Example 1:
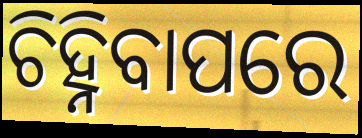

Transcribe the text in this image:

ଚିହ୍ନିବାପରେ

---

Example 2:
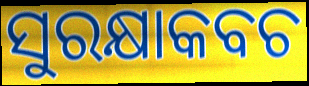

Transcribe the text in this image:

ସୁରକ୍ଷାକବଚ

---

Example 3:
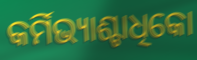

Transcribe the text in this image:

କର୍ମିଭ୍ୟାଶ୍ଚାଧିକୋ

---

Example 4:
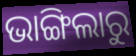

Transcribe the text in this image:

ଭାଙ୍ଗିଲାରୁ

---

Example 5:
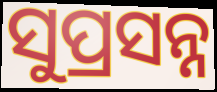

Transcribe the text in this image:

ସୁପ୍ରସନ୍ନ